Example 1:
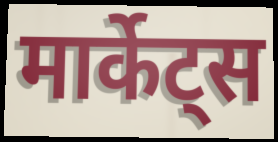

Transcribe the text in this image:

मार्केट्स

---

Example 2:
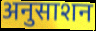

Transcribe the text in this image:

अनुसाशन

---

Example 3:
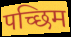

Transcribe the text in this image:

पच्छिम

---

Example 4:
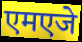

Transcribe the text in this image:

एमएजे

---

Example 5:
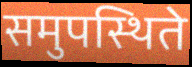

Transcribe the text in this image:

समुपस्थिते